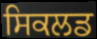
ਸਿਕਲਡ